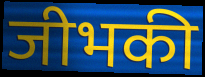
जीभकी